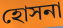
হোসনা